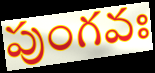
పుంగవః